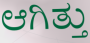
ಆಗಿತ್ತು